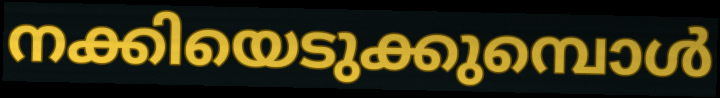
നക്കിയെടുക്കുമ്പൊൾ